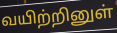
வயிற்றினுள்